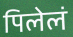
पिलेलं